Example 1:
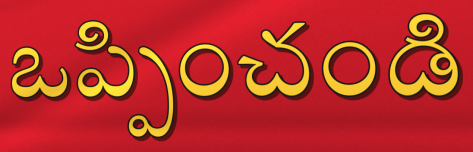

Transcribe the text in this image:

ఒప్పించండి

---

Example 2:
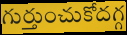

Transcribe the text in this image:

గుర్తుంచుకోదగ్గ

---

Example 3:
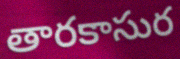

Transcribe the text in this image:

తారకాసుర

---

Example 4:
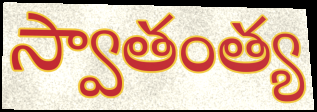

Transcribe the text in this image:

స్వాతంత్య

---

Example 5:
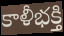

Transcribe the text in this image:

కాళీభక్తి